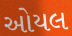
ઓયલ